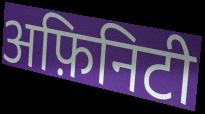
अफ़िनिटी